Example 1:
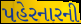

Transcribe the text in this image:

પહેરનારની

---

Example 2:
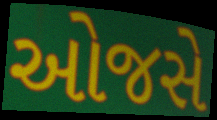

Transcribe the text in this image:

ઓજસે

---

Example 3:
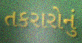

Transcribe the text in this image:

તકરારોનું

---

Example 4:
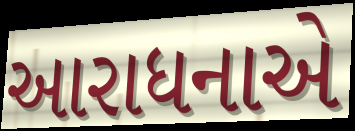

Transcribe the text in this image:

આરાધનાએ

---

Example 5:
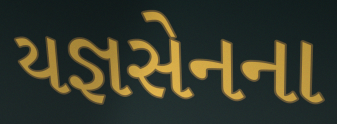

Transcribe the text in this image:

યજ્ઞસેનના